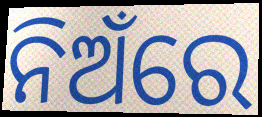
ନିଅଁରେ